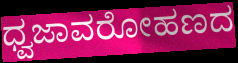
ಧ್ವಜಾವರೋಹಣದ